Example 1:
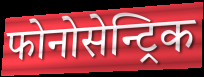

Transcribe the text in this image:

फोनोसेन्ट्रिक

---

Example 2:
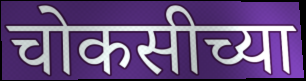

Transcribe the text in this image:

चोकसीच्या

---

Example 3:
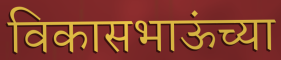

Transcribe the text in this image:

विकासभाऊंच्या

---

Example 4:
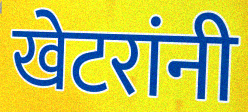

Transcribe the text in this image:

खेटरांनी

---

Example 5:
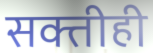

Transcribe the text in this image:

सक्तीही